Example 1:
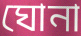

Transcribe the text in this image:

ঘোনা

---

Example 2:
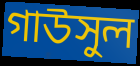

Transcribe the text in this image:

গাউসুল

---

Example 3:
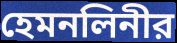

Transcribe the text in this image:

হেমনলিনীর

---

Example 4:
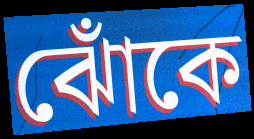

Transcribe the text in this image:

ঝোঁকে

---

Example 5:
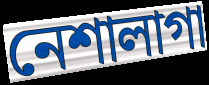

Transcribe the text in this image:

নেশালাগা